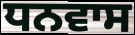
ਧਨਵਾਸ